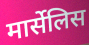
मार्सेलिस